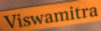
Viswamitra